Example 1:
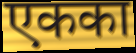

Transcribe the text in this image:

एकका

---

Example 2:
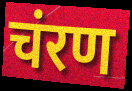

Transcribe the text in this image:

चंरण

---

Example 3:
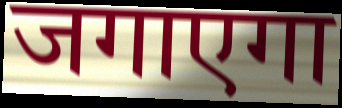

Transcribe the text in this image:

जगाएगा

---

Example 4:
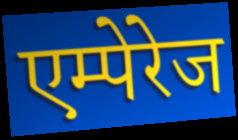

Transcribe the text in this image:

एम्पेरेज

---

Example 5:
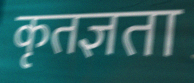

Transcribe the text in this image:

कृतज्ञता